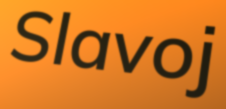
Slavoj